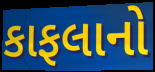
કાફલાનો